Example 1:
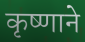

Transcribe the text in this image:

कृष्णाने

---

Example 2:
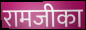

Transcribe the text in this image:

रामजीका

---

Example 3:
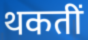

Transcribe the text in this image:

थकतीं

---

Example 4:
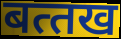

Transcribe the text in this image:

बत्‍तख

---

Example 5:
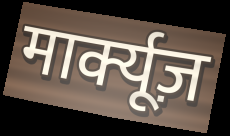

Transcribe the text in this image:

मार्क्यूज़